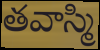
తవాస్మి